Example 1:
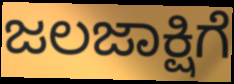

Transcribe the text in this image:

ಜಲಜಾಕ್ಷಿಗೆ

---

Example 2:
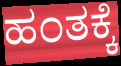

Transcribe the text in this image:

ಹಂತಕ್ಕೆ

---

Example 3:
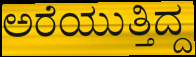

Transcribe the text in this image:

ಅರೆಯುತ್ತಿದ್ದ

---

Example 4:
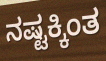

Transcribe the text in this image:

ನಷ್ಟಕ್ಕಿಂತ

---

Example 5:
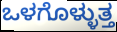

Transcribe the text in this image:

ಒಳಗೊಳ್ಳುತ್ತ